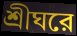
শ্রীঘরে